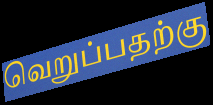
வெறுப்பதற்கு